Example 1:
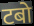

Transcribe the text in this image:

टबो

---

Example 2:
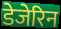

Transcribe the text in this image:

डेजेरिन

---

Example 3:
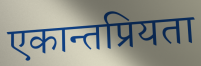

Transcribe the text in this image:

एकान्तप्रियता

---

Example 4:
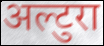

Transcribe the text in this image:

अल्टुरा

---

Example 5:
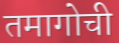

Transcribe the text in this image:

तमागोची